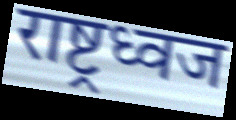
राष्ट्रध्वज